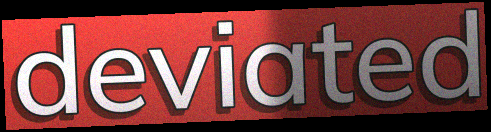
deviated